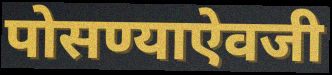
पोसण्याऐवजी